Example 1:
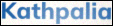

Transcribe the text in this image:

Kathpalia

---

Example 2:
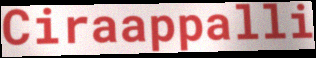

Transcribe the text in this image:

Ciraappalli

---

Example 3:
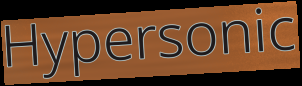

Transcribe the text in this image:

Hypersonic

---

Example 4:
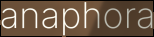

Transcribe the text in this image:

anaphora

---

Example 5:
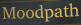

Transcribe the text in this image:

Moodpath